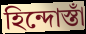
হিন্দোস্তাঁ